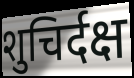
शुचिर्दक्ष